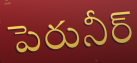
పెరునీర్